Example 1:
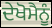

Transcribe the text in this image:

ਦੇਖੋਮੈਨੂੰ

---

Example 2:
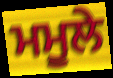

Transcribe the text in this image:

ਮਮੂਲੇ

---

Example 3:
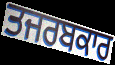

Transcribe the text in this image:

ਤਜਰਬਕਾਰ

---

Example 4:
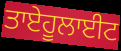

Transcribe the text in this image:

ਤਾਏਹੂਲਾਈਟ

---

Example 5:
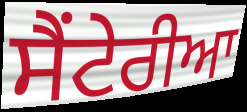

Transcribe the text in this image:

ਸੈਂਟੇਰੀਆ